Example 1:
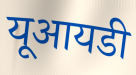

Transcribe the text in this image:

यूआयडी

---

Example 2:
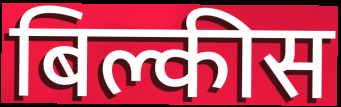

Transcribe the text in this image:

बिल्कीस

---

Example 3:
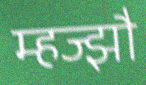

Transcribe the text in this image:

म्हज्झौ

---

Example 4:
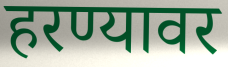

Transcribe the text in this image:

हरण्यावर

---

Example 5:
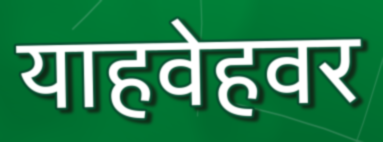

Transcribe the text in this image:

याहवेहवर